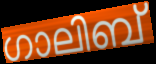
ഗാലിബ്